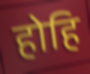
होहि